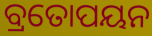
ବ୍ରତୋପୟନ